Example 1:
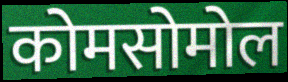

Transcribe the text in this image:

कोमसोमोल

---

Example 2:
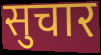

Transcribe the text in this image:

सुचार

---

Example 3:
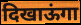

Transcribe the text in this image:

दिखाऊंगा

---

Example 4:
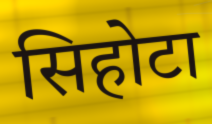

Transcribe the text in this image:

सिहोटा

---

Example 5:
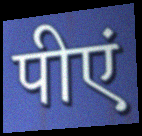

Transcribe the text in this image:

पीएं